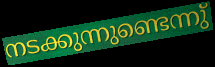
നടക്കുന്നുണ്ടെന്നു്